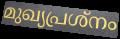
മുഖ്യപ്രശ്നം